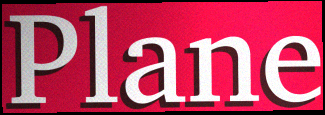
Plane